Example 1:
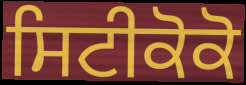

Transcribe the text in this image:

ਸਿਟੀਕੋਕੋ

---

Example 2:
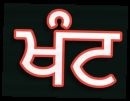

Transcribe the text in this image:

ਖੰਟ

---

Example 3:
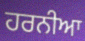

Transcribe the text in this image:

ਹਰਨੀਆ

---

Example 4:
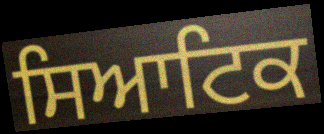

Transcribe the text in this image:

ਸਿਆਟਿਕ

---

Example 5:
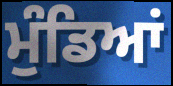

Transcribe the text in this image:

ਮੁੰਡਿਆਂ